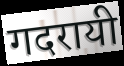
गदरायी